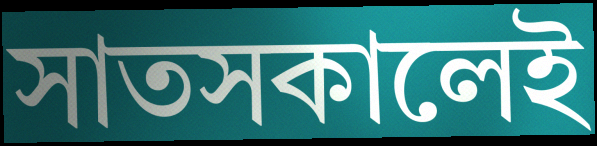
সাতসকালেই